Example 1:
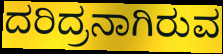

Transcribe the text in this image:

ದರಿದ್ರನಾಗಿರುವ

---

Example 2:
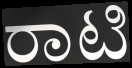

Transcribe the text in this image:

ರಾಟಿ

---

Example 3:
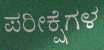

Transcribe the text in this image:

ಪರೀಕ್ಷೆಗಳ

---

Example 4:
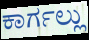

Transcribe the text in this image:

ಕಾರ್ಗಲ್ಲು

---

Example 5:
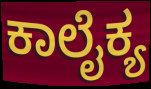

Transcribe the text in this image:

ಕಾಲೈಕ್ಯ